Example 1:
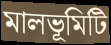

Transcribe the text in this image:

মালভূমিটি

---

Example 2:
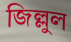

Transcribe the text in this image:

জিল্লুল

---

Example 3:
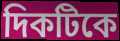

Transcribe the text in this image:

দিকটিকে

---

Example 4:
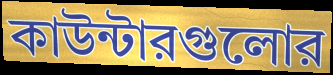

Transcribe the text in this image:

কাউন্টারগুলোর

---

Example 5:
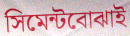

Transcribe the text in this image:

সিমেন্টবোঝাই